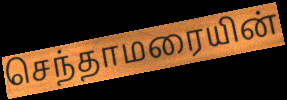
செந்தாமரையின்